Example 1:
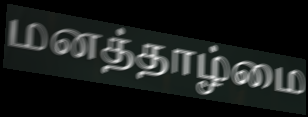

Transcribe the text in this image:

மனத்தாழ்மை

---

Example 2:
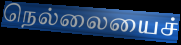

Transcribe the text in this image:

நெல்லையைச்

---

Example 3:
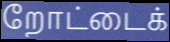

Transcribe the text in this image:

றோட்டைக்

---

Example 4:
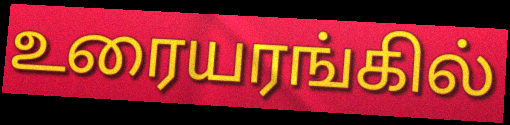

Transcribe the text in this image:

உரையரங்கில்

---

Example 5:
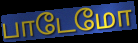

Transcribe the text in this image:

பாடேமோ